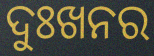
ଦୁଃଖନର